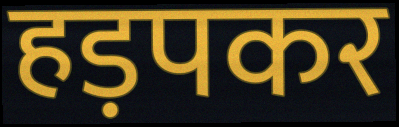
हड़पकर